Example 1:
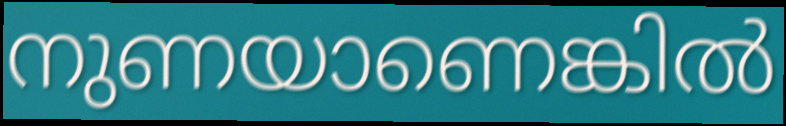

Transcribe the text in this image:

നുണയാണെങ്കിൽ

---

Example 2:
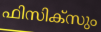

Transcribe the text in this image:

ഫിസിക്സും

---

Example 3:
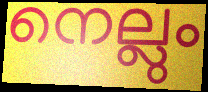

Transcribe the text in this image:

നെല്ലും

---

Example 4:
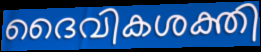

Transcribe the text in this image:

ദൈവികശക്തി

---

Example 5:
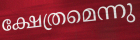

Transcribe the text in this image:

ക്ഷേത്രമെന്നു